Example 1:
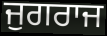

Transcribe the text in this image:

ਜੁਗਰਾਜ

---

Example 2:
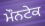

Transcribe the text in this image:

ਮੌਨਟੇਕ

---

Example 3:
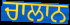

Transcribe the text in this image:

ਚਾਲਾਨ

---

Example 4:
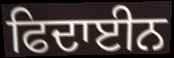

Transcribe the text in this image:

ਫਿਦਾਈਨ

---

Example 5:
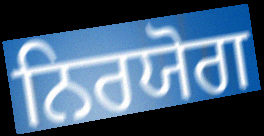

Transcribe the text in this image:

ਨਿਰਯੋਗ